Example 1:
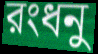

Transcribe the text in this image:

রংধনু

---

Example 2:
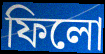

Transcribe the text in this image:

ফিলো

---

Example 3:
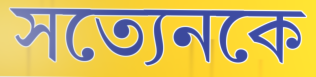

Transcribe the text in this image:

সত্যেনকে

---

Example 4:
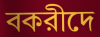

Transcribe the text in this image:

বকরীদে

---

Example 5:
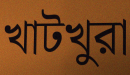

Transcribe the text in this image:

খাটখুরা